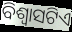
ବିଶ୍ଵାସଟିଏ